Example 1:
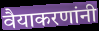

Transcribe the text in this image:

वैयाकरणांनी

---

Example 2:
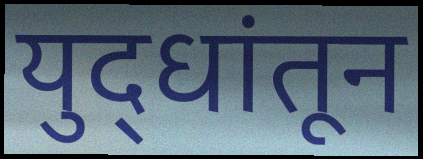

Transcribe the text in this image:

युद्धांतून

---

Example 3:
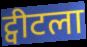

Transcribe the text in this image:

ट्वीटला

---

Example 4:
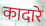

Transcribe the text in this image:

कादारे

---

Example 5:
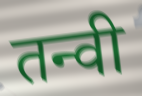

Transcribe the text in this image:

तन्वी